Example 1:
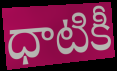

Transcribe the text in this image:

ధాటికీ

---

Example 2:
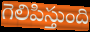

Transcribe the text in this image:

గెలిపిస్తుంది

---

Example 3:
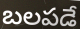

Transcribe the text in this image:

బలపడే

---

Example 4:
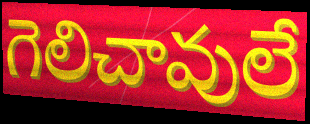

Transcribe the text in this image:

గెలిచావులే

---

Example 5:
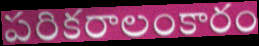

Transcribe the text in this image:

పరికరాలంకారం